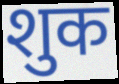
शुक